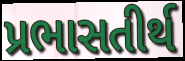
પ્રભાસતીર્થ